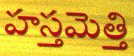
హస్తమెత్తి